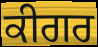
ਕੀਗਰ